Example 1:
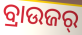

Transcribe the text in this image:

ବ୍ରାଉଜର୍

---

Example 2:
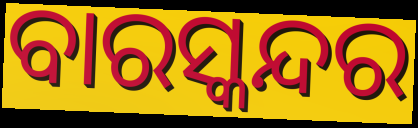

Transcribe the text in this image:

ବାରସ୍କନ୍ଦର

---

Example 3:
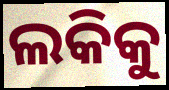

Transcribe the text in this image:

ଲକିକୁ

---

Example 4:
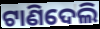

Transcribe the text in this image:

ଟାଣିଦେଲି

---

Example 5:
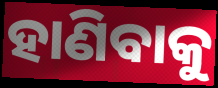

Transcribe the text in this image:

ହାଣିବାକୁ